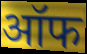
ऑफ